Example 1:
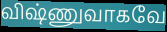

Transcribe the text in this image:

விஷ்ணுவாகவே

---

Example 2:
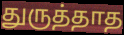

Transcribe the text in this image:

துருத்தாத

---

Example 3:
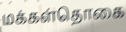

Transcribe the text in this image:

மக்கள்தொகை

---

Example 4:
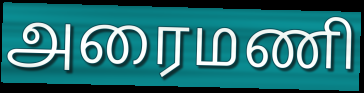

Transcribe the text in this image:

அரைமணி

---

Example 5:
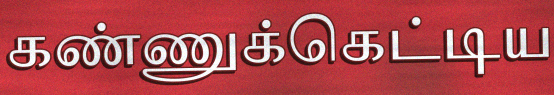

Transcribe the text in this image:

கண்ணுக்கெட்டிய